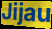
Jijau